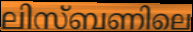
ലിസ്ബണിലെ